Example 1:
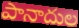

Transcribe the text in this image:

పానాదుల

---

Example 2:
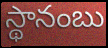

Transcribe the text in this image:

స్థానంబు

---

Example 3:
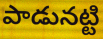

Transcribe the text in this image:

పాడునట్టి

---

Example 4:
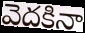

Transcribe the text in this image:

వెదకినా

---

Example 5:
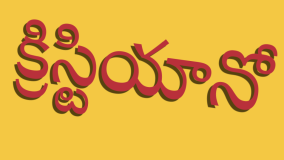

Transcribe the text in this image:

క్రిస్టియానో